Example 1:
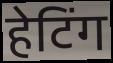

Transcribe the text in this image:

हेटिंग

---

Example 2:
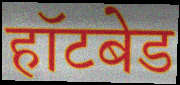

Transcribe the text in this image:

हॉटबेड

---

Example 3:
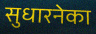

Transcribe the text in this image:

सुधारनेका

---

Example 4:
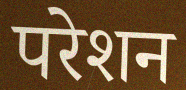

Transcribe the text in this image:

परेशन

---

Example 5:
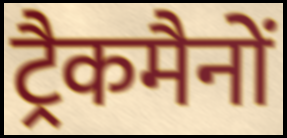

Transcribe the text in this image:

ट्रैकमैनों